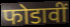
फोडावीं